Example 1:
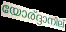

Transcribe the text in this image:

യോര്ദ്ദാനില്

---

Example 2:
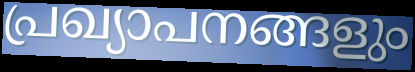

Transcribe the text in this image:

പ്രഖ്യാപനങ്ങളും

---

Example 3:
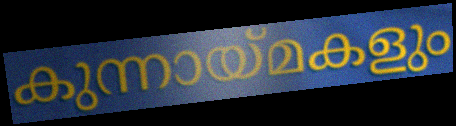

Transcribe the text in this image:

കുന്നായ്മകളും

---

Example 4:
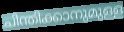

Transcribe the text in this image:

ചിന്തിക്കാനുമുള്ള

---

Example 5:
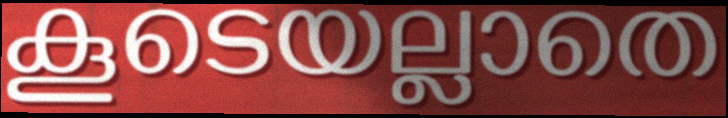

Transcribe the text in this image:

കൂടെയല്ലാതെ